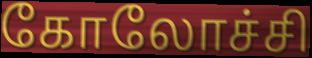
கோலோச்சி